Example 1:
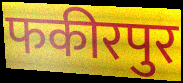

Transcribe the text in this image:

फकीरपुर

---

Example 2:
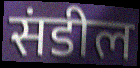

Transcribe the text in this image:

संडील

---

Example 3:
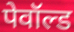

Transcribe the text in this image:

पेवॉल्ड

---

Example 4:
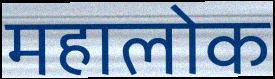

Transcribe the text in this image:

महालोक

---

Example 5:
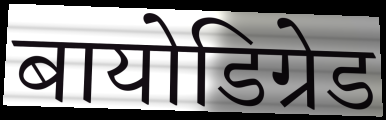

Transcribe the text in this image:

बायोडिग्रेड